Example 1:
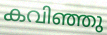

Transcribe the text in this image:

കവിഞ്ഞു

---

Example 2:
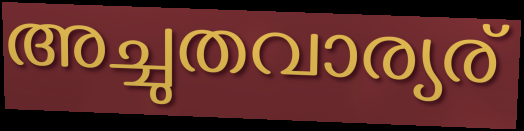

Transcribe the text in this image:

അച്ചുതവാര്യര്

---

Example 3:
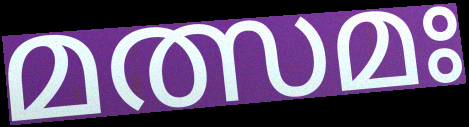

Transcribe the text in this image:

മത്സമഃ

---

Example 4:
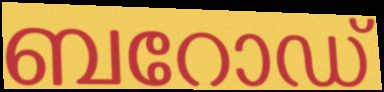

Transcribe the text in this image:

ബറോഡ്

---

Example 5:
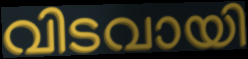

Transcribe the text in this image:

വിടവായി